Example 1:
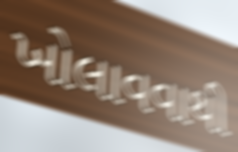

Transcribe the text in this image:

ખોલાવવાથી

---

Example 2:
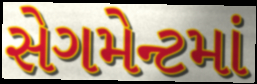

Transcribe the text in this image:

સેગમેન્ટમાં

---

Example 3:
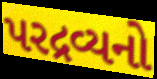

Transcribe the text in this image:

પરદ્રવ્યનો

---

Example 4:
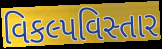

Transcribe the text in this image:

વિકલ્પવિસ્તાર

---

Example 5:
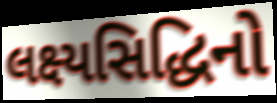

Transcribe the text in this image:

લક્ષ્યસિદ્ધિનો